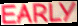
EARLY